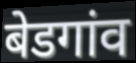
बेडगांव